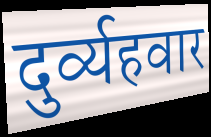
दुर्व्यहवार